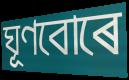
ঘূণবোৰে